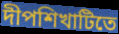
দীপশিখাটিতে